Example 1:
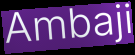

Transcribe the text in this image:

Ambaji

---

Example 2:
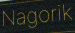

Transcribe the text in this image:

Nagorik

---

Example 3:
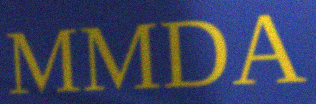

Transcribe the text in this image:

MMDA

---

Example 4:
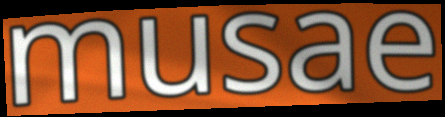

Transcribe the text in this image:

musae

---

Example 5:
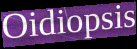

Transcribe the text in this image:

Oidiopsis